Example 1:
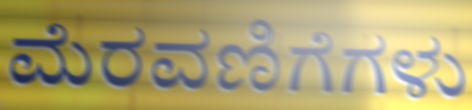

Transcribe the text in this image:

ಮೆರವಣಿಗೆಗಳು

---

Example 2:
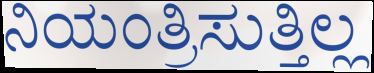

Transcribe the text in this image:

ನಿಯಂತ್ರಿಸುತ್ತಿಲ್ಲ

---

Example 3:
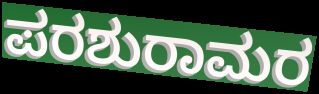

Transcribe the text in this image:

ಪರಶುರಾಮರ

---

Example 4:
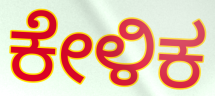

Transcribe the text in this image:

ಕೇಳಿಕ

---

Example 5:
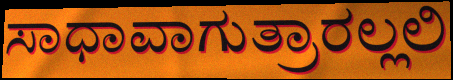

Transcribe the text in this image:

ಸಾಧಾವಾಗುತ್ರಾರಲ್ಲಲಿ